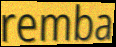
remba